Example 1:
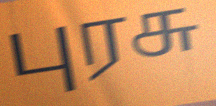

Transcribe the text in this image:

புரசு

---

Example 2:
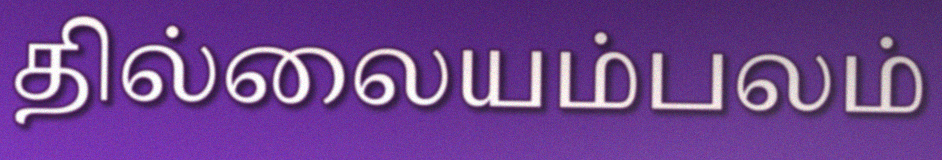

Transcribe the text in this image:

தில்லையம்பலம்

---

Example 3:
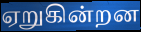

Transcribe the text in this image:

ஏறுகின்றன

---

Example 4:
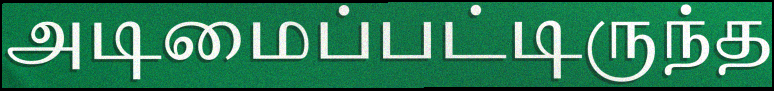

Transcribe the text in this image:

அடிமைப்பட்டிருந்த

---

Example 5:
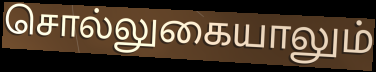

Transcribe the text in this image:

சொல்லுகையாலும்